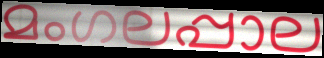
മംഗലപ്പാല